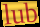
lub